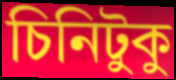
চিনিটুকু